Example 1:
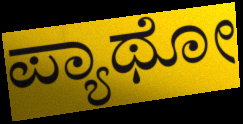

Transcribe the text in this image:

ಪ್ಯಾಥೋ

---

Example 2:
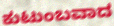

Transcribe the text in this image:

ಕುಟುಂಬವಾದ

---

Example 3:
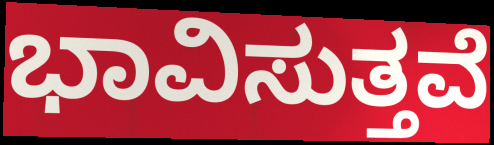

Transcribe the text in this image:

ಭಾವಿಸುತ್ತವೆ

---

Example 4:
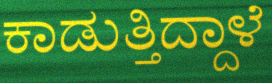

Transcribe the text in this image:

ಕಾಡುತ್ತಿದ್ದಾಳೆ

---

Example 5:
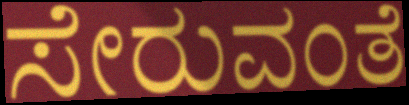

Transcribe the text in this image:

ಸೇರುವಂತೆ